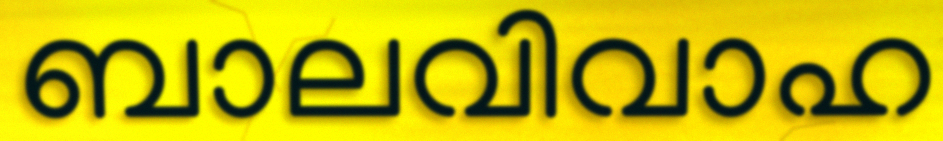
ബാലവിവാഹ